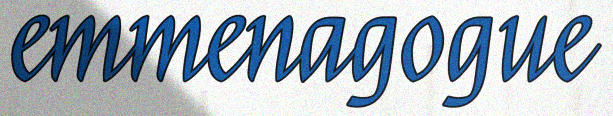
emmenagogue